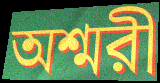
অশ্মরী